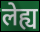
लेह्य